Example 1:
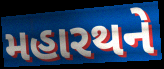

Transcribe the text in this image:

મહારથને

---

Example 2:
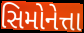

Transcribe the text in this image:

સિમોનેત્તા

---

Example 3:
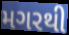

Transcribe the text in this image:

મગરથી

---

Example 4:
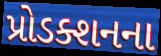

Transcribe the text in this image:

પ્રોડક્શનના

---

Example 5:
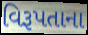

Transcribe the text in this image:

વિરૂપતાના